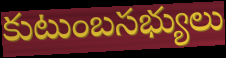
కుటుంబసభ్యులు